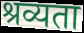
श्रव्यता